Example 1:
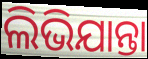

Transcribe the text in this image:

ଲିଭିଯାନ୍ତା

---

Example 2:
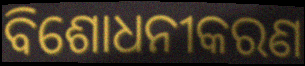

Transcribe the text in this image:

ବିଶୋଧନୀକରଣ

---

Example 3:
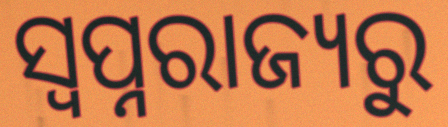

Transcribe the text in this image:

ସ୍ୱପ୍ନରାଜ୍ୟରୁ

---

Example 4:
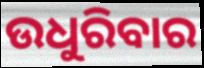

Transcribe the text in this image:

ଉଧୁରିବାର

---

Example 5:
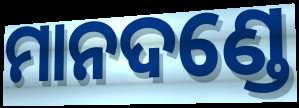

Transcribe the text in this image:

ମାନଦଣ୍ଡେ